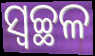
ସ୍ୱଚ୍ଛଳ